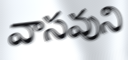
వాసవుని